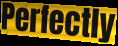
Perfectly